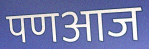
पणआज